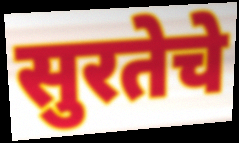
सुरतेचे